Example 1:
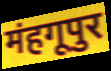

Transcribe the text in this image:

मंहगूपुर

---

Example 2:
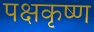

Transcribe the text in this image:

पक्षकृष्ण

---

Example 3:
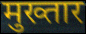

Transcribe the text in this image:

मुख्तार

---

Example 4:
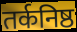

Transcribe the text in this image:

तर्कनिष्ठ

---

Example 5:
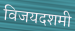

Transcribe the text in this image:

विजयदशमी